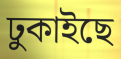
ঢুকাইছে